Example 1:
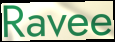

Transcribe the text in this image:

Ravee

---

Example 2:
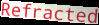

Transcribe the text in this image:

Refracted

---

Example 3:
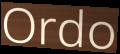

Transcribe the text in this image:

Ordo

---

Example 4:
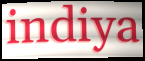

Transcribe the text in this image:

indiya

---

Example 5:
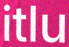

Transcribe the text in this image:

itlu